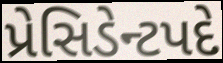
પ્રેસિડેન્ટપદે